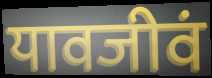
यावजीवं